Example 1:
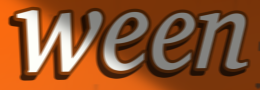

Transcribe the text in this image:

ween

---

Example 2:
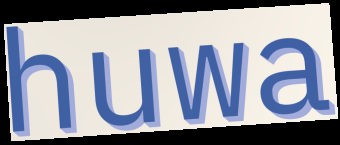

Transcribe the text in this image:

huwa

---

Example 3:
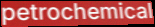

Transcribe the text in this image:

petrochemical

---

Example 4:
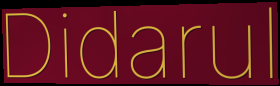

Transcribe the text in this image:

Didarul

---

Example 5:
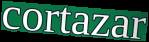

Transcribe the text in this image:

cortazar